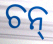
ଚନ୍